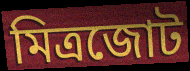
মিত্রজোট